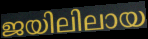
ജയിലിലായ